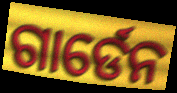
ଗାର୍ଡେନ